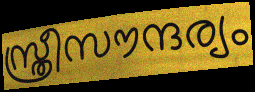
സ്ത്രീസൗന്ദര്യം